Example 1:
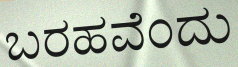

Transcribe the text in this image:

ಬರಹವೆಂದು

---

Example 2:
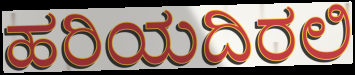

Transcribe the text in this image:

ಹರಿಯದಿರಲಿ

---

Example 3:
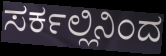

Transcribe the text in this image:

ಸರ್ಕಲ್ಲಿನಿಂದ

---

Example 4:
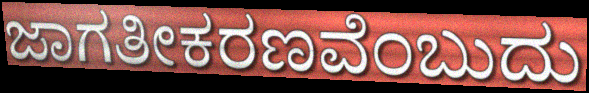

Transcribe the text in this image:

ಜಾಗತೀಕರಣವೆಂಬುದು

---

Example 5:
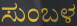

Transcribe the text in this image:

ಸುಂಬಳ